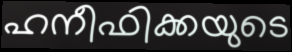
ഹനീഫിക്കയുടെ